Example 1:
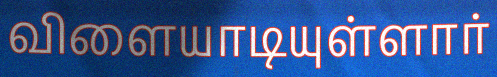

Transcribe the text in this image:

விளையாடியுள்ளார்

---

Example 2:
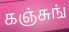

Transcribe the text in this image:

கஞ்சுங்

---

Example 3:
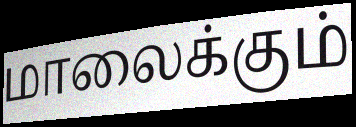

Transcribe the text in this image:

மாலைக்கும்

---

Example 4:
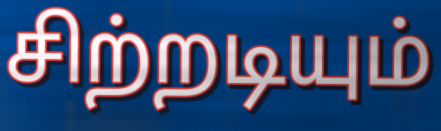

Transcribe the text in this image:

சிற்றடியும்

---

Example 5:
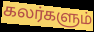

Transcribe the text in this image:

கலர்களும்